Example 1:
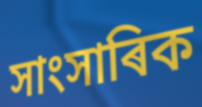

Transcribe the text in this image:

সাংসাৰিক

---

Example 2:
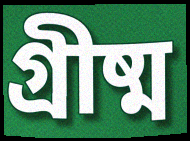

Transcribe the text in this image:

গ্ৰীষ্ম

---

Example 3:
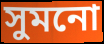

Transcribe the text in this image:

সুমনো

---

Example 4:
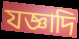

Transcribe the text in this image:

যজ্ঞাদি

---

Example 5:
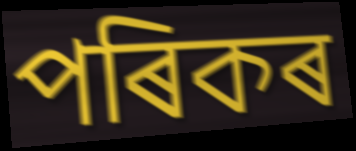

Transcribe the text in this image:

পৰিকৰ